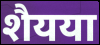
शैयया